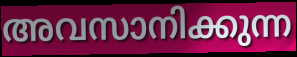
അവസാനിക്കുന്ന